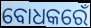
ବୋଧକରେଁ